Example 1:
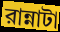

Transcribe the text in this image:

রান্নাটা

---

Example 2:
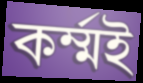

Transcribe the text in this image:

কর্ম্মই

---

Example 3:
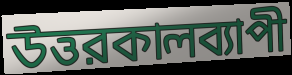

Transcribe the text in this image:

উত্তরকালব্যাপী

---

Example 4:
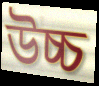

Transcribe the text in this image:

উচ্চ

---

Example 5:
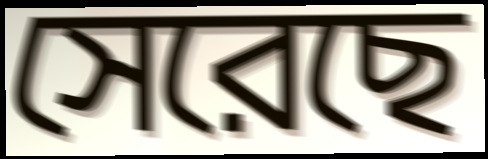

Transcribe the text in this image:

সেরেছে